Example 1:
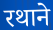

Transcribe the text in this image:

रथाने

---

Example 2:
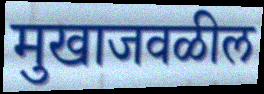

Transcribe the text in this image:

मुखाजवळील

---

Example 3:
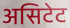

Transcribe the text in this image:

असिटेट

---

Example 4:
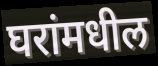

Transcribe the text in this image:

घरांमधील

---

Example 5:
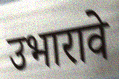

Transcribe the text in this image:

उभारावे